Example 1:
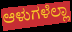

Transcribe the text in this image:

ಆಳುಗಳೆಲ್ಲಾ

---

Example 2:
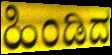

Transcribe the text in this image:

ಹಿಂಡಿದ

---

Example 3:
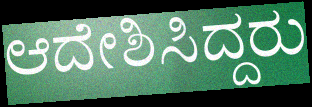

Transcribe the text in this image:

ಆದೇಶಿಸಿದ್ದರು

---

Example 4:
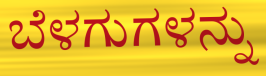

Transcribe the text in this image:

ಬೆಳಗುಗಳನ್ನು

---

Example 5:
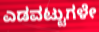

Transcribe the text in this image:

ಎಡವಟ್ಟುಗಳೇ